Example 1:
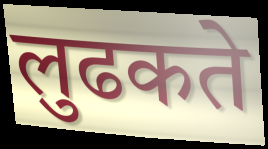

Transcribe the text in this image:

लुढकते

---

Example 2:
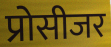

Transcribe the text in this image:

प्रोसीजर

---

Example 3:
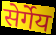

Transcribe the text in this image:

सेर्गेय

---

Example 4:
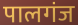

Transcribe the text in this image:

पालगंज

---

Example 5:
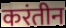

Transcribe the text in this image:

करंतीन